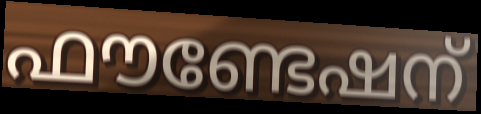
ഫൗണ്ടേഷന്